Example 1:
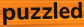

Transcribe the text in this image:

puzzled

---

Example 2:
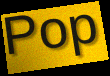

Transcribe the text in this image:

Pop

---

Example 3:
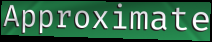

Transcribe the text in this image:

Approximate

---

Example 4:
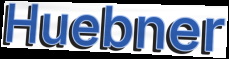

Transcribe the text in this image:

Huebner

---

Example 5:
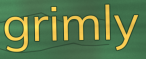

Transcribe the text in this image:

grimly